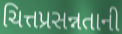
ચિત્તપ્રસન્નતાની